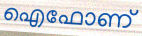
ഐഫോണ്